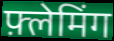
फ़्लेमिंग